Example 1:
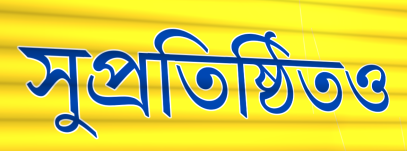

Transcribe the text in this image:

সুপ্রতিষ্ঠিতও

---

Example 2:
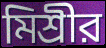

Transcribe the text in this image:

মিশ্রীর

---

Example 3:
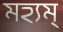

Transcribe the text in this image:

মহ্যম্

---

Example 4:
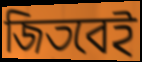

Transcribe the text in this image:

জিতবেই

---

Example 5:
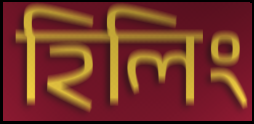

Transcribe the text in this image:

হিলিং